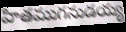
హితముగనుడయ్య